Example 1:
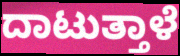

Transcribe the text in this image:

ದಾಟುತ್ತಾಳೆ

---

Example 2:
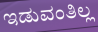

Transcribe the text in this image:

ಇಡುವಂತಿಲ್ಲ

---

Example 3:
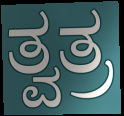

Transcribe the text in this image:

ತ್ವತ್ರ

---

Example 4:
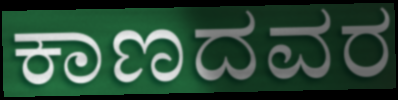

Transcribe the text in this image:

ಕಾಣದವರ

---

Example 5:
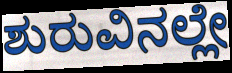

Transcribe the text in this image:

ಶುರುವಿನಲ್ಲೇ